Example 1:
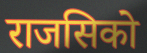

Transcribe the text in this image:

राजसिको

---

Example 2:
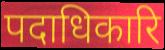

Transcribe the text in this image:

पदाधिकारि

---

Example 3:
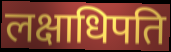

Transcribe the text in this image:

लक्षाधिपति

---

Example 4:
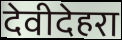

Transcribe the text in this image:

देवीदेहरा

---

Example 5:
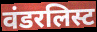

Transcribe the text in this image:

वंडरलिस्ट